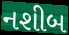
નશીબ